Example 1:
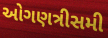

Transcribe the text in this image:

ઓગણત્રીસમી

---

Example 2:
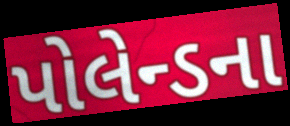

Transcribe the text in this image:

પોલેન્ડના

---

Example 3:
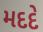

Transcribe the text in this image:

મદદે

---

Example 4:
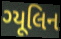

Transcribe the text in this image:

ગ્યૂલિન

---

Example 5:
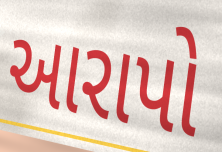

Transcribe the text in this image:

આરાપો